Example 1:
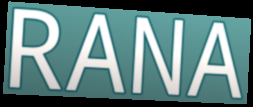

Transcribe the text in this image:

RANA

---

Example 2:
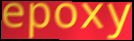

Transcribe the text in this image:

epoxy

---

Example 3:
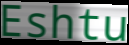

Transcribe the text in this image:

Eshtu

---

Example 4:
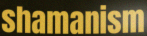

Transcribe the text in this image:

shamanism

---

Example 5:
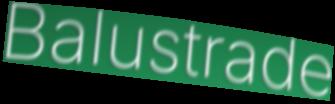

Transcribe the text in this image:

Balustrade